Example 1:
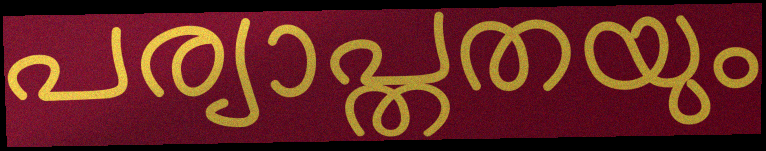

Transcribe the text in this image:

പര്യാപ്തതയും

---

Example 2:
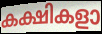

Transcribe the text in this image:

കക്ഷികളാ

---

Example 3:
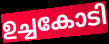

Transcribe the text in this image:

ഉച്ചകോടി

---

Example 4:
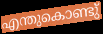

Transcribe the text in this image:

എന്തുകൊണ്ടു്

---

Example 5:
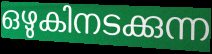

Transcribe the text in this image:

ഒഴുകിനടക്കുന്ന